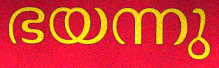
ഭയന്നു